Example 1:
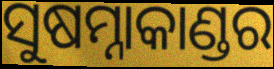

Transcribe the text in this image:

ସୁଷମ୍ନାକାଣ୍ଡର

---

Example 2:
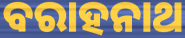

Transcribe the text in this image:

ବରାହନାଥ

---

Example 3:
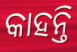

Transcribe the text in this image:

କାହନ୍ତି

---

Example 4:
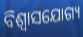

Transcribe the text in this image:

ବିଶ୍ବାସଯୋଗ୍ୟ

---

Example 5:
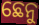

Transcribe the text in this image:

ଛେନୁ